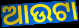
ଆଉଟା